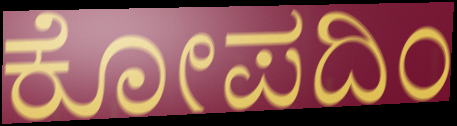
ಕೋಪದಿಂ